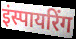
इंस्पायरिंग